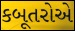
કબૂતરોએ